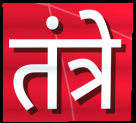
तंत्रे